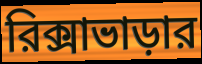
রিক্সাভাড়ার